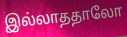
இல்லாததாலோ